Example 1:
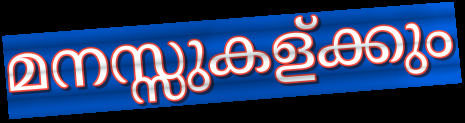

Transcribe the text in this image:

മനസ്സുകള്ക്കും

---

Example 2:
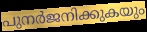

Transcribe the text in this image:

പുനർജനിക്കുകയും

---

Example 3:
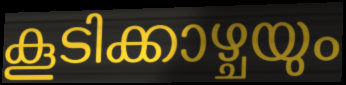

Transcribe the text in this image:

കൂടിക്കാഴ്ചയും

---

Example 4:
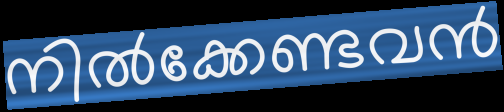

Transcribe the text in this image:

നിൽക്കേണ്ടവൻ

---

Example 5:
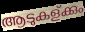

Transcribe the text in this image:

ആടുകള്ക്കും